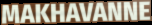
MAKHAVANNE